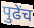
पुढेंच